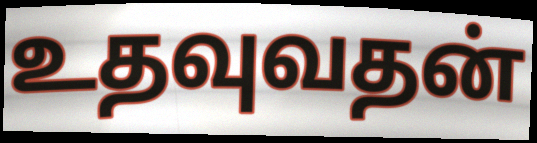
உதவுவதன்